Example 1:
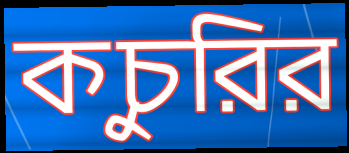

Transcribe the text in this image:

কচুরির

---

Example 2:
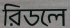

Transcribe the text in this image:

রিডলে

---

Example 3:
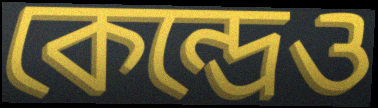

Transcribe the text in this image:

কেন্দ্রেও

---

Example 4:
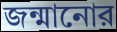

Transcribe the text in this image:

জন্মানোর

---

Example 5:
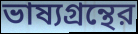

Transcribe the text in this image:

ভাষ্যগ্রন্থের